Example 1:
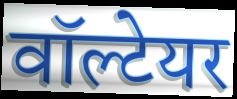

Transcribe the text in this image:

वॉल्टेयर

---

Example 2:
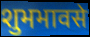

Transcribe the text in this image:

शुभभावसे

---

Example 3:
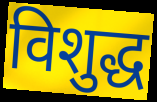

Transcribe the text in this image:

विशुद्ध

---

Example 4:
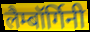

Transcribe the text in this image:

लैम्बॉर्गिनी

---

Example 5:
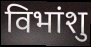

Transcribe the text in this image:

विभांशु